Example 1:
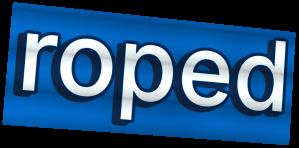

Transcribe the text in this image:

roped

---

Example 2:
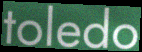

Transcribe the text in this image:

toledo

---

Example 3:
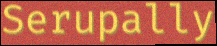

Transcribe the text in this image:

Serupally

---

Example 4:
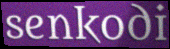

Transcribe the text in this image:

senkodi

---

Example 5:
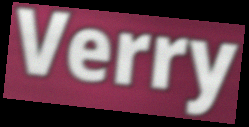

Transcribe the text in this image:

Verry